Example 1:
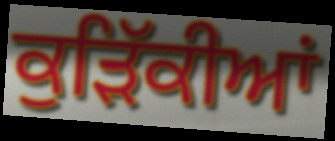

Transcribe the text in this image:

ਕੁੜਿੱਕੀਆਂ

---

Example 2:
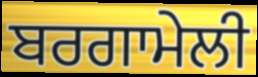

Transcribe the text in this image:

ਬਰਗਾਮੇਲੀ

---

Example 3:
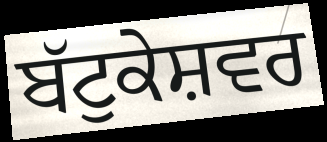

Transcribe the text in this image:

ਬੱਟੁਕੇਸ਼ਵਰ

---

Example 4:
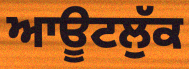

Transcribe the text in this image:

ਆਊਟਲੁੱਕ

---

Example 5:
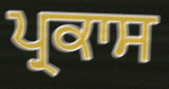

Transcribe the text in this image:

ਪ੍ਰਕਾਸ